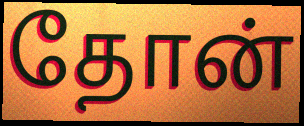
தோன்